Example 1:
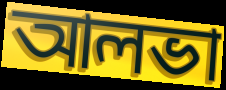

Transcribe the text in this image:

আলভা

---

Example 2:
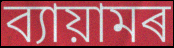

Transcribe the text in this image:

ব্যায়ামৰ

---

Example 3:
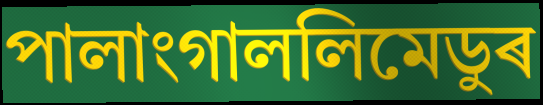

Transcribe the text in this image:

পালাংগাললিমেডুৰ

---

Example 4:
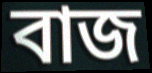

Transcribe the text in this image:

বাজ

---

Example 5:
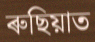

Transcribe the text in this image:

ৰুছিয়াত